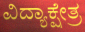
ವಿದ್ಯಾಕ್ಷೇತ್ರ